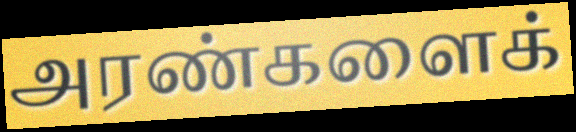
அரண்களைக்